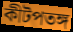
কীটপতঙ্গ